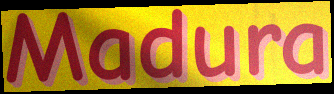
Madura